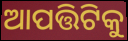
ଆପତ୍ତିଟିକୁ